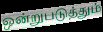
ஒன்றுபடுத்தும்